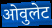
ओवुलेट